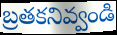
బ్రతకనివ్వండి